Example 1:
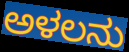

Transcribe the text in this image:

ಅಳಲನು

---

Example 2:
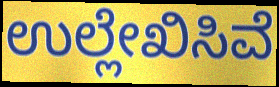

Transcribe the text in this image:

ಉಲ್ಲೇಖಿಸಿವೆ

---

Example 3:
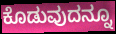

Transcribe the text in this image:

ಕೊಡುವುದನ್ನೂ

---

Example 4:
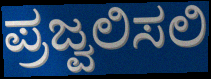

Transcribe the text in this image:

ಪ್ರಜ್ವಲಿಸಲಿ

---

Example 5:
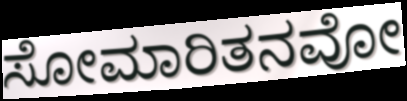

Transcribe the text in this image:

ಸೋಮಾರಿತನವೋ